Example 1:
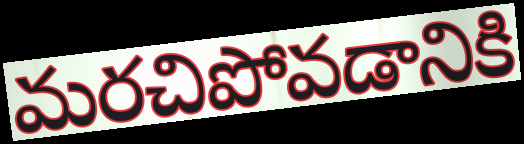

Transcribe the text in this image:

మరచిపోవడానికి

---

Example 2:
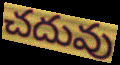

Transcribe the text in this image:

చదువు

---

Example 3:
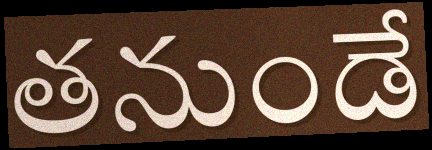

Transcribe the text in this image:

తనుండే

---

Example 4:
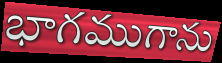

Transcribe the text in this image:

భాగముగాను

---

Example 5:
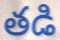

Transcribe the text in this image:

తడి